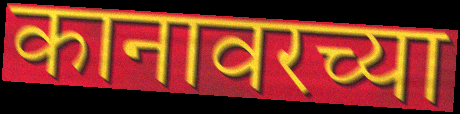
कानावरच्या